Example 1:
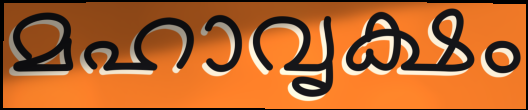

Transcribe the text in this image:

മഹാവൃക്ഷം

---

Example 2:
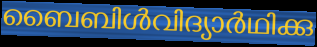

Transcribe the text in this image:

ബൈബിൾവിദ്യാർഥിക്കു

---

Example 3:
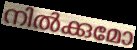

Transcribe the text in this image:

നിൽക്കുമോ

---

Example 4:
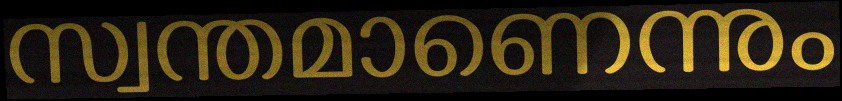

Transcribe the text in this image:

സ്വന്തമാണെന്നും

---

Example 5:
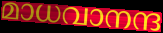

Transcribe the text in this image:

മാധവാനന്ദ